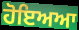
ਹੋਇਅਆ